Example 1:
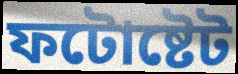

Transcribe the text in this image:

ফটোষ্টেট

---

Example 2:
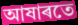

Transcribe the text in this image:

আষাৰতে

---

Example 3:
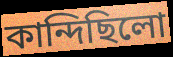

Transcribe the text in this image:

কান্দিছিলো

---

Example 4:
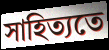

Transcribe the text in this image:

সাহিত্য়তে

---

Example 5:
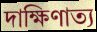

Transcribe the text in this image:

দাক্ষিণাত্য